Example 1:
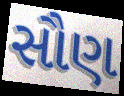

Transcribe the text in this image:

સૌણ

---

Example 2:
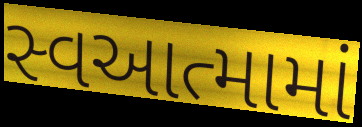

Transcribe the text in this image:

સ્વઆત્મામાં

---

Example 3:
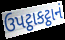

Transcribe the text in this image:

ઉપટ્ઠાકટ્ઠાનં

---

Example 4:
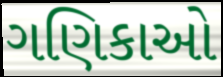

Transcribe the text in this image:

ગણિકાઓ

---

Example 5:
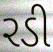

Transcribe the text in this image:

રડી